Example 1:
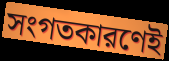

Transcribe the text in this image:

সংগতকারণেই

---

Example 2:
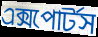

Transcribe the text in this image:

এক্সপোর্টস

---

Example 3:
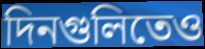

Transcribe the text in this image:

দিনগুলিতেও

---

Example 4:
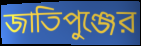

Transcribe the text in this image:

জাতিপুঞ্জের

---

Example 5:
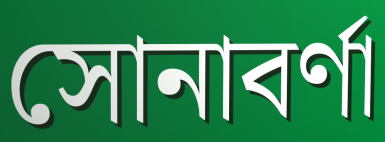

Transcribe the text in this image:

সোনাবর্ণা